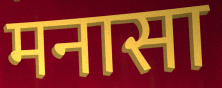
मनासा